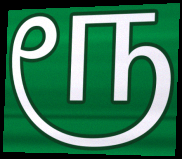
ரூ